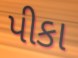
પીકા